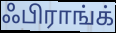
ஃபிராங்க்